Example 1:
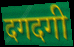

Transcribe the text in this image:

दगदगी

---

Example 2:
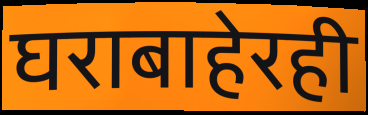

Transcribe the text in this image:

घराबाहेरही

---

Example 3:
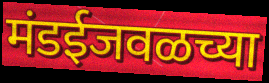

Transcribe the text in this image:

मंडईजवळच्या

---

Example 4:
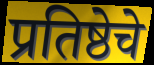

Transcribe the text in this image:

प्रतिष्ठेचे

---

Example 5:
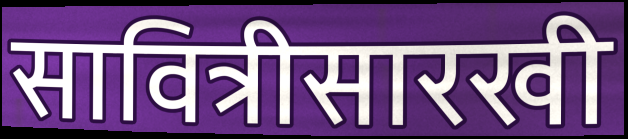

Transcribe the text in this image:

सावित्रीसारखी